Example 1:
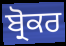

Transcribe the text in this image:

ਬ੍ਰੋਕਰ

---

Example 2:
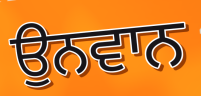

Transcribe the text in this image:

ਉਨਵਾਨ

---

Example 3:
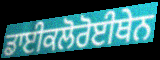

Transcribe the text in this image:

ਡਾਈਕਲੋਰੋਈਥੇਨ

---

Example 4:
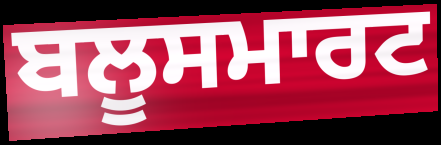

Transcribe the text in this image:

ਬਲੂਸਮਾਰਟ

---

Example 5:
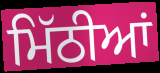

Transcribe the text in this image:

ਮਿੱਠੀਆਂ